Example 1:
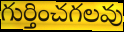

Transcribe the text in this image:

గుర్తించగలవు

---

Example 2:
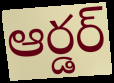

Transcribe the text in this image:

ఆర్డర్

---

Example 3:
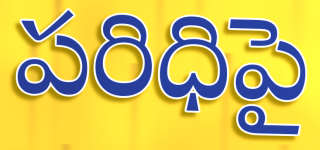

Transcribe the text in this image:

పరిధిపై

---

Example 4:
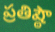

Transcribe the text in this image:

ప్రతిష్ఠౌ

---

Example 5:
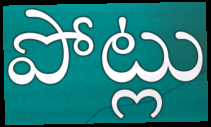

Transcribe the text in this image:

పోట్లు